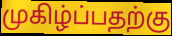
முகிழ்ப்பதற்கு